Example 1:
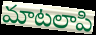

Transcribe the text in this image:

మాటలాపి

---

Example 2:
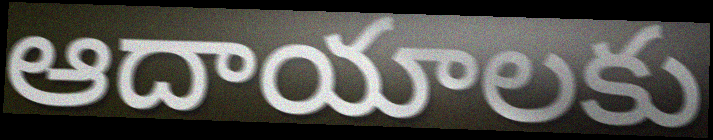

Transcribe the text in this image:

ఆదాయాలకు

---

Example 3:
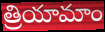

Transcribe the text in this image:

త్రియామాం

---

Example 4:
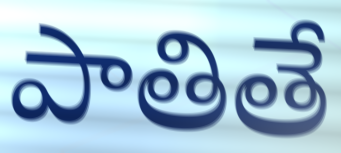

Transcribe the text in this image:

పాతితే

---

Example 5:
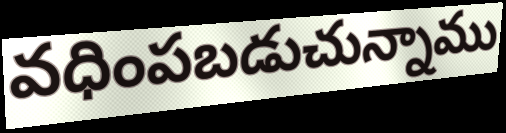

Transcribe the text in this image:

వధింపబడుచున్నాము